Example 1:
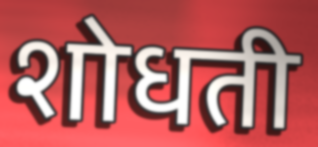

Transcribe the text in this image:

शोधती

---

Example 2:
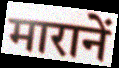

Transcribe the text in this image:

मारानें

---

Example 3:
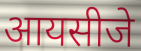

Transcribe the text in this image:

आयसीजे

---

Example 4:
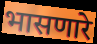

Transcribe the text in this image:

भासणारे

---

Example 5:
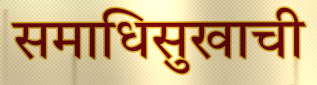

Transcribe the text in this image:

समाधिसुखाची